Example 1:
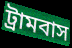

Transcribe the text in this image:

ট্রামবাস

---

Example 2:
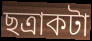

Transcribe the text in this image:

ছত্রাকটা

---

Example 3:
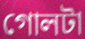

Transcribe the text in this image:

গোলটা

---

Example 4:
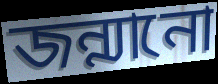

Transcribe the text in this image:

জন্মানো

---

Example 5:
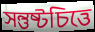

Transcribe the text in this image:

সন্তুষ্টচিত্তে